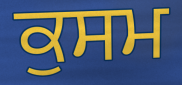
ਕੁਸਮ